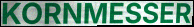
KORNMESSER